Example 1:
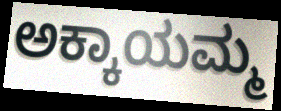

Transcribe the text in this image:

ಅಕ್ಕಾಯಮ್ಮ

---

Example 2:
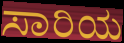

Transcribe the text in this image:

ಸಾರಿಯ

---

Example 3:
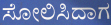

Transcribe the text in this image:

ಸೋಲಿಸಿದಾಗ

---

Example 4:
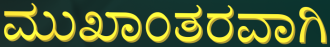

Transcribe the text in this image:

ಮುಖಾಂತರವಾಗಿ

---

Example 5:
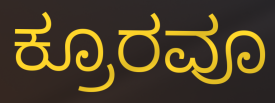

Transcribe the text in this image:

ಕ್ರೂರವೂ